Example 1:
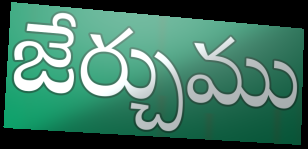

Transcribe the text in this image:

జేర్చుము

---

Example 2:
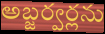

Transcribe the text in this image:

అబ్జర్వర్లను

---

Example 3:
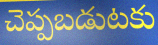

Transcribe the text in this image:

చెప్పబడుటకు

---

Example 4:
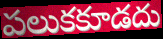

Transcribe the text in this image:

పలుకకూడదు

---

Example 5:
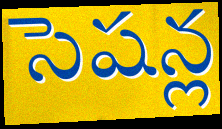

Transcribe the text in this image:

సెషన్ల